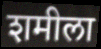
शमीला